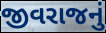
જીવરાજનું